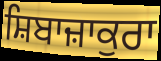
ਸ਼ਿਬਾਜ਼ਾਕੁਰਾ